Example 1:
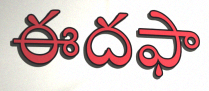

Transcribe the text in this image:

ఈదఫా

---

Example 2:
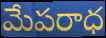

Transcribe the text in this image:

మేపరాధ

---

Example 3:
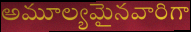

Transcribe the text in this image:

అమూల్యమైనవారిగా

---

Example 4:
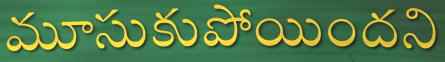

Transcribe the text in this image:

మూసుకుపోయిందని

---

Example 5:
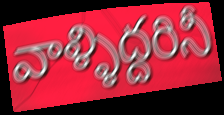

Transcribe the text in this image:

వాళ్ళిద్దరినీ